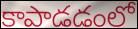
కాపాడడంలో